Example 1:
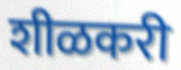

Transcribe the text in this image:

शीळकरी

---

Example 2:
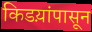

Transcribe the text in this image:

किडय़ांपासून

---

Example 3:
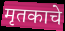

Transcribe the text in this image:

मृतकाचे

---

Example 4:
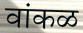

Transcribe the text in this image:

वांकळ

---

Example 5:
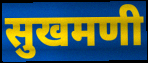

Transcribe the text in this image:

सुखमणी